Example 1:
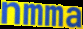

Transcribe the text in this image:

nmma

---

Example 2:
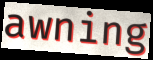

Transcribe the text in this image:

awning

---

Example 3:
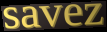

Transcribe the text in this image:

savez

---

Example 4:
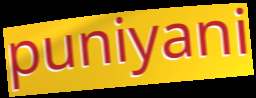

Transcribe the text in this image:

puniyani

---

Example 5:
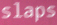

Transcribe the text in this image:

slaps